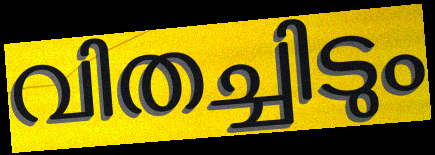
വിതച്ചിടും